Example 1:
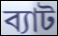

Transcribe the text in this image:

ব্যাট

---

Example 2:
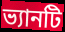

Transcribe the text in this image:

ভ্যানটি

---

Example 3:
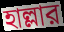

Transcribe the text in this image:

হাল্লার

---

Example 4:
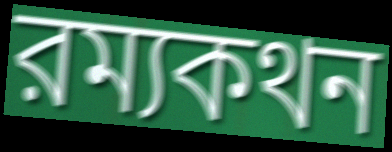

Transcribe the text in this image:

রম্যকথন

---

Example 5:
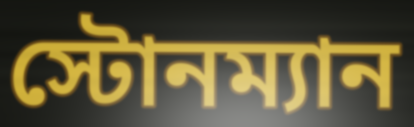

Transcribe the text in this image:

স্টোনম্যান